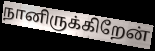
நானிருக்கிறேன்